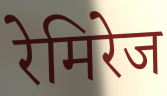
रेमिरेज